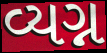
વ્યગ્ન